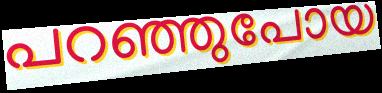
പറഞ്ഞുപോയ